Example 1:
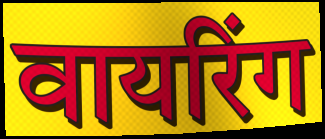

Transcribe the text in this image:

वायरिंग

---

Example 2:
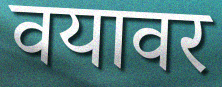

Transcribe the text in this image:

वयावर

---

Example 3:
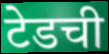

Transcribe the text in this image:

टेडची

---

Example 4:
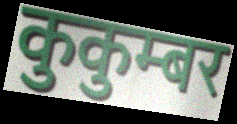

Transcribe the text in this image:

कुकुम्बर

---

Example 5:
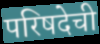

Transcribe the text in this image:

परिषदेची